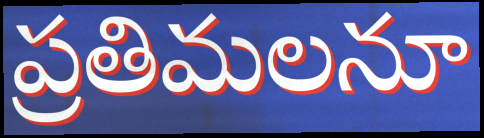
ప్రతిమలనూ